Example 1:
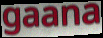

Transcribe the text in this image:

gaana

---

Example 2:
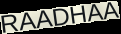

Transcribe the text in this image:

RAADHAA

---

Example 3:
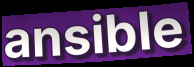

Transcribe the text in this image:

ansible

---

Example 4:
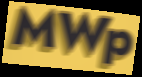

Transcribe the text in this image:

MWp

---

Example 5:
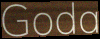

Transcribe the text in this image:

Goda